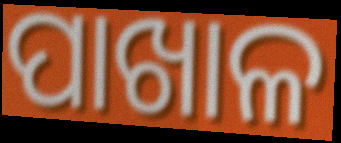
ପାଖାଳ